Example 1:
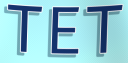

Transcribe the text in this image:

TET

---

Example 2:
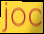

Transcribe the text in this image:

joc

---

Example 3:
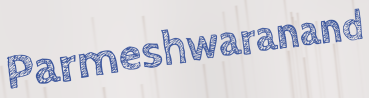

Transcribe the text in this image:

Parmeshwaranand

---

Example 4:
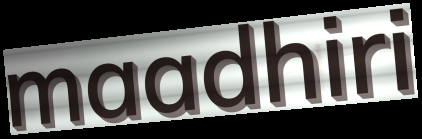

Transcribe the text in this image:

maadhiri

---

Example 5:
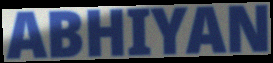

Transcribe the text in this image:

ABHIYAN